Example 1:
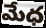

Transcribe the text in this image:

మేధ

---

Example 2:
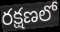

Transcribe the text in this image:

రక్షణలో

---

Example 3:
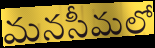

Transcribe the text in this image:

మనసీమలో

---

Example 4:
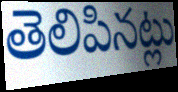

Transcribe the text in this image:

తెలిపినట్లు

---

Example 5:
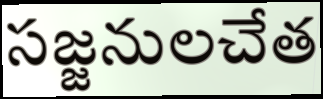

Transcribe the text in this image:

సజ్జనులచేత